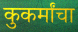
कुकर्मांचा